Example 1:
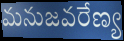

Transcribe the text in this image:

మనుజవరేణ్య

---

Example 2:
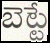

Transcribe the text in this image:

బెట్టే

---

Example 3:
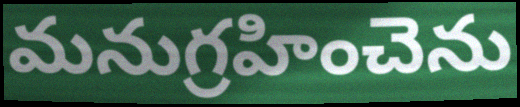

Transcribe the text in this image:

మనుగ్రహించెను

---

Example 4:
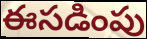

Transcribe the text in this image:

ఈసడింపు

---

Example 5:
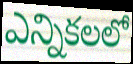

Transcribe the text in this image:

ఎన్నికలలో